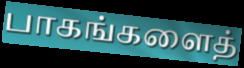
பாகங்களைத்